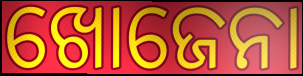
ଖୋଜେନା